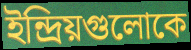
ইন্দ্রিয়গুলোকে